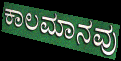
ಕಾಲಮಾನವು